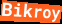
Bikroy